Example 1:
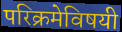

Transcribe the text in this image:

परिक्रमेविषयी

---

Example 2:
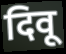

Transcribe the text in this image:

दिवू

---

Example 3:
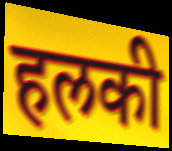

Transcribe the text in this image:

हलकी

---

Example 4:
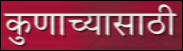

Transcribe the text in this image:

कुणाच्यासाठी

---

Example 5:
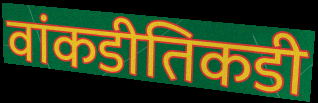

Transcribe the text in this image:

वांकडीतिकडी